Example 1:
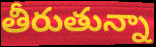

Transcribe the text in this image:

తీరుతున్నా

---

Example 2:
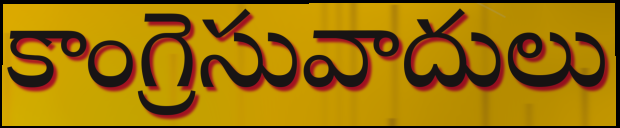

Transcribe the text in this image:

కాంగ్రెసువాదులు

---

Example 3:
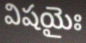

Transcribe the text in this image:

విషయైః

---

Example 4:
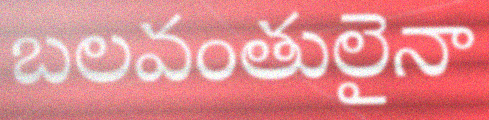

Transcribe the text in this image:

బలవంతులైనా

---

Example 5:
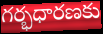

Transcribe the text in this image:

గర్భధారణకు